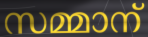
സമ്മാന്